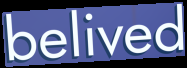
belived